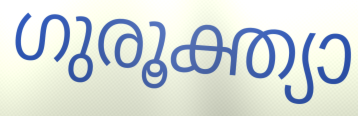
ഗുരൂക്ത്യാ